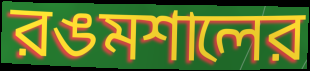
রঙমশালের